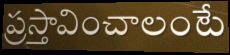
ప్రస్తావించాలంటే